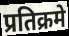
प्रतिक्रमे